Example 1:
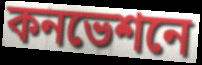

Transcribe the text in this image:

কনভেশনে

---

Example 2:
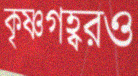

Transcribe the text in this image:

কৃষ্ণগহ্বরও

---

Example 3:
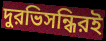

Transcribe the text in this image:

দুরভিসন্ধিরই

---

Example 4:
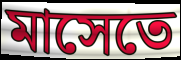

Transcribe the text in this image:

মাসেতে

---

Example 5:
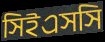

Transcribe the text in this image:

সিইএসসি